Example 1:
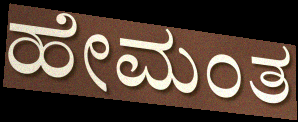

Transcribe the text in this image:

ಹೇಮಂತ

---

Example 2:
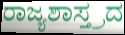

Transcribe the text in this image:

ರಾಜ್ಯಶಾಸ್ತ್ರದ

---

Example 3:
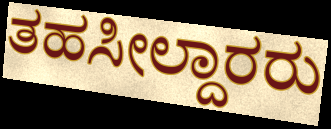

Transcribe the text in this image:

ತಹಸೀಲ್ದಾರರು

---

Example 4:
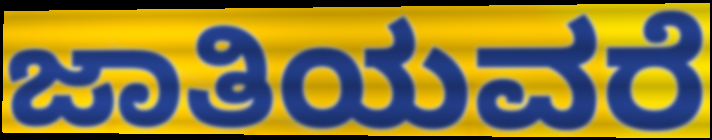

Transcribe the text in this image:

ಜಾತಿಯವರೆ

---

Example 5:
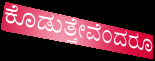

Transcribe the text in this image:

ಕೊಡುತ್ತೇವೆಂದರೂ